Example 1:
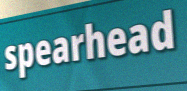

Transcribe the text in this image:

spearhead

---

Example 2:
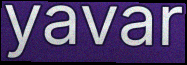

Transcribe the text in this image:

yavar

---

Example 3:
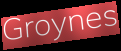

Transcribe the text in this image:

Groynes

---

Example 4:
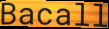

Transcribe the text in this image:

Bacall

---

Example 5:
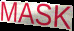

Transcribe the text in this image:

MASK